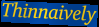
Thinnaively